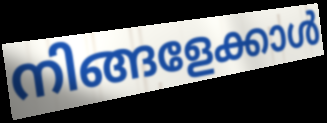
നിങ്ങളേക്കാൾ